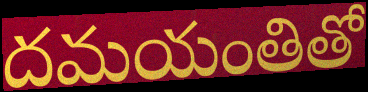
దమయంతితో